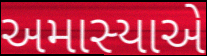
અમાસ્યાએ